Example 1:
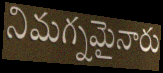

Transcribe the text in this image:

నిమగ్నమైనారు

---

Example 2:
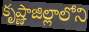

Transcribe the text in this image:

కృష్ణాజిల్లాలోని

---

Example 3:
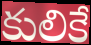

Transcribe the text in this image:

కులికే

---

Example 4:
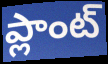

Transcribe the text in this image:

ప్లాంట్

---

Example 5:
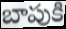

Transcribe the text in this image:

బాపుకి